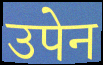
उपेन